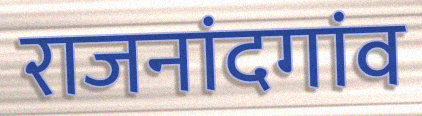
राजनांदगांव